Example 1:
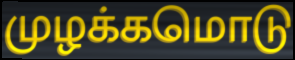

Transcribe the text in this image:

முழக்கமொடு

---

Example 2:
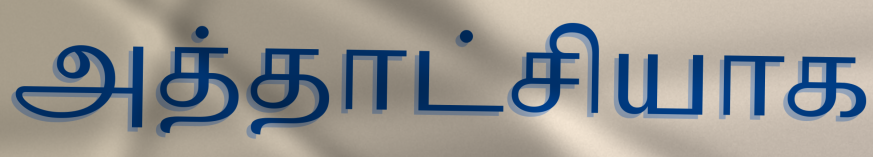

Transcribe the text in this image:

அத்தாட்சியாக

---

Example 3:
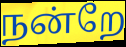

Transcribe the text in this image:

நன்றே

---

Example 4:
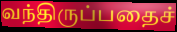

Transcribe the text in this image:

வந்திருப்பதைச்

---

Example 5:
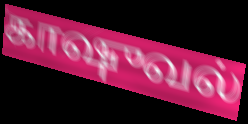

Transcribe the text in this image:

காஷுவல்